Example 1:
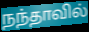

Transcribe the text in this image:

நந்தாவில்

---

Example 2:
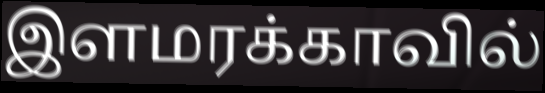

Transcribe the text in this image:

இளமரக்காவில்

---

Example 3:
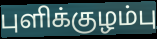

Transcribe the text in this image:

புளிக்குழம்பு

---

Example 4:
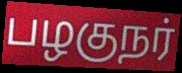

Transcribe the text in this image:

பழகுநர்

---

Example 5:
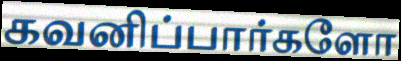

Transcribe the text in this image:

கவனிப்பார்களோ